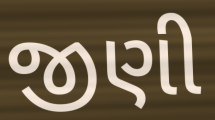
જીણી